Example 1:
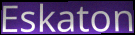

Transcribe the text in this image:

Eskaton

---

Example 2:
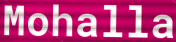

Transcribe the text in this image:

Mohalla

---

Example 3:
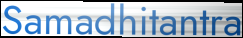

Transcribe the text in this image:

Samadhitantra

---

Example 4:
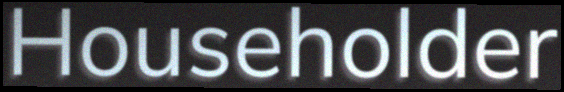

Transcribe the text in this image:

Householder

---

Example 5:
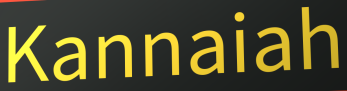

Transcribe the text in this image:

Kannaiah